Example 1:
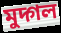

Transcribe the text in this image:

মুদ্গল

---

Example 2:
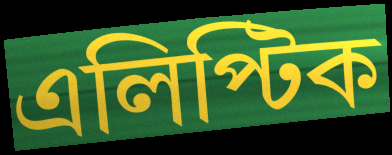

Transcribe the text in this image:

এলিপ্টিক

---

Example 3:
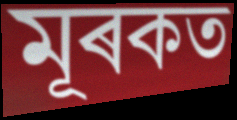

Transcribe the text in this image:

মূৰকত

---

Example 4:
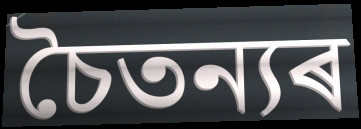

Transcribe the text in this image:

চৈতন্যৰ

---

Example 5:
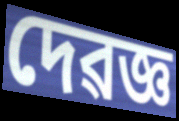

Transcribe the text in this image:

দেৱজ্ঞ